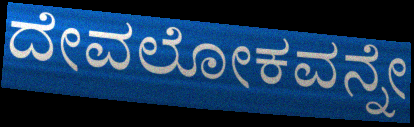
ದೇವಲೋಕವನ್ನೇ